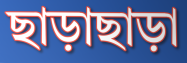
ছাড়াছাড়া